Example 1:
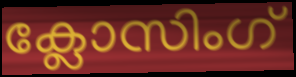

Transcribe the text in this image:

ക്ലോസിംഗ്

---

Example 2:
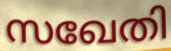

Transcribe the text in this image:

സഖേതി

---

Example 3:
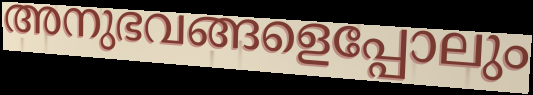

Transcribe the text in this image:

അനുഭവങ്ങളെപ്പോലും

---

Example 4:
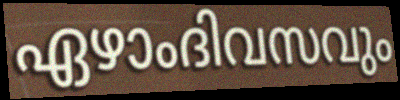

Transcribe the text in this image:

ഏഴാംദിവസവും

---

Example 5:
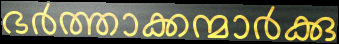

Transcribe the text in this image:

ഭർത്താക്കന്മാർക്കു